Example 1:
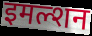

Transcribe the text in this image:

इमल्शन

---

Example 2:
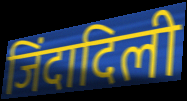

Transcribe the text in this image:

जिंदादिली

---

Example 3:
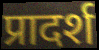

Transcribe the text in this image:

प्रादर्श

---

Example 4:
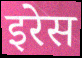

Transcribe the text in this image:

इरेस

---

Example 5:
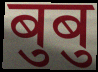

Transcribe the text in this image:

बुबु